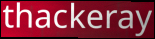
thackeray